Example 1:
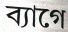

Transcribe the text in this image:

ব্যাগে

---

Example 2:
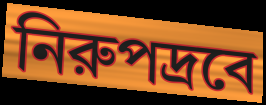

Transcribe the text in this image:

নিরুপদ্রবে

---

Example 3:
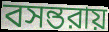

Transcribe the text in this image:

বসন্তরায়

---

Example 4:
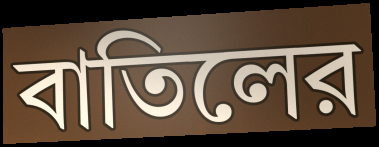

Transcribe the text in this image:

বাতিলের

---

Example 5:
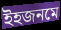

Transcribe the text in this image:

ইহজনমে